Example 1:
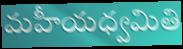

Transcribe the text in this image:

మహీయధ్వమితి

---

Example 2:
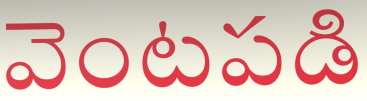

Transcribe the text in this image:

వెంటపడి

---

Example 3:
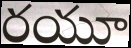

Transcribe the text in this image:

రయూ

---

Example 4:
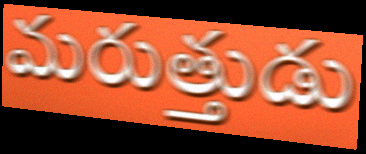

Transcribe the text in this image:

మరుత్తుడు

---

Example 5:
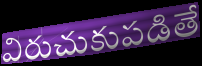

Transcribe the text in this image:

విరుచుకుపడితే